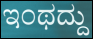
ಇಂಥದ್ದು